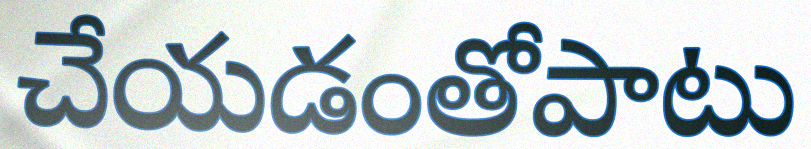
చేయడంతోపాటు